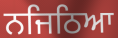
ਨਜਿਠਿਆ